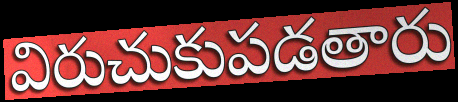
విరుచుకుపడతారు